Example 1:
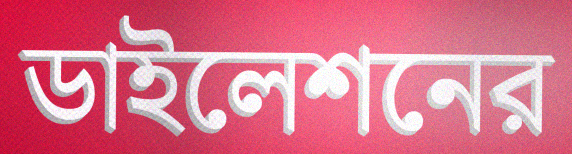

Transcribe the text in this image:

ডাইলেশনের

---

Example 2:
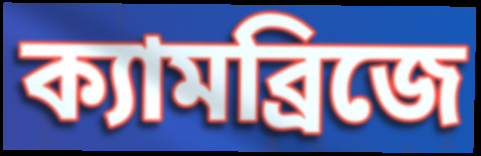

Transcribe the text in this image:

ক্যামব্রিজে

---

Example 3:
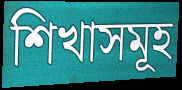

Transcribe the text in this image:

শিখাসমূহ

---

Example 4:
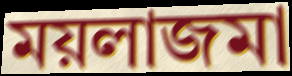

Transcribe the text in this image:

ময়লাজমা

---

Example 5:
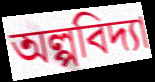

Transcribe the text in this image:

অল্পবিদ্যা